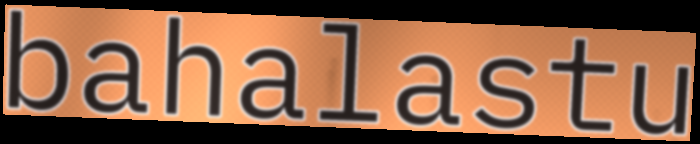
bahalastu